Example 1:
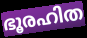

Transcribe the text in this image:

ഭൂരഹിത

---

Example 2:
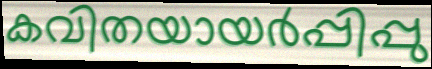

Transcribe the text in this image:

കവിതയായർപ്പിപ്പു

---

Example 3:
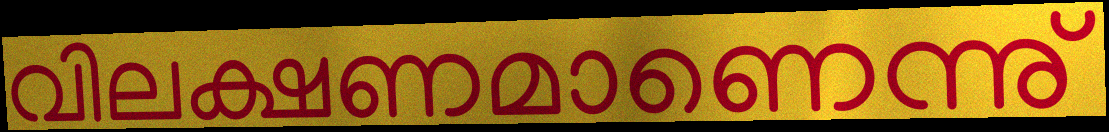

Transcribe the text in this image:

വിലക്ഷണമാണെന്നു്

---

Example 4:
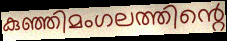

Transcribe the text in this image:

കുഞ്ഞിമംഗലത്തിന്റെ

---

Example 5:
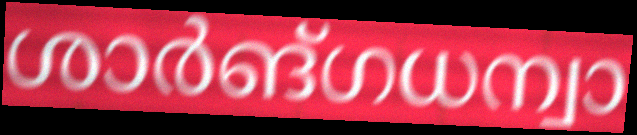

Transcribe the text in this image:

ശാർങ്ഗധന്വാ